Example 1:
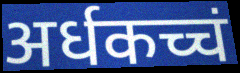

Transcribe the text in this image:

अर्धकच्चं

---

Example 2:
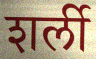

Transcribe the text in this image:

शर्ली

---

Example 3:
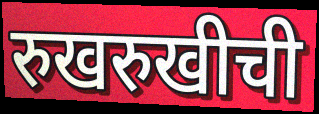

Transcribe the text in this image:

रुखरुखीची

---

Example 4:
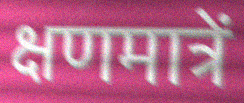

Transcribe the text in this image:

क्षणमात्रें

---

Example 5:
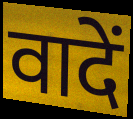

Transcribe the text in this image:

वादें